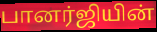
பானர்ஜியின்